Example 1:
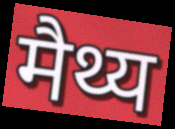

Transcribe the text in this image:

मैथ्य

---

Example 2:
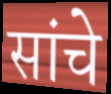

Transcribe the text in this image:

सांचे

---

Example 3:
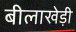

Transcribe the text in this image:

बीलाखेड़ी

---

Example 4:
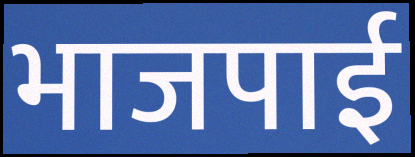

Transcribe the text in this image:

भाजपाई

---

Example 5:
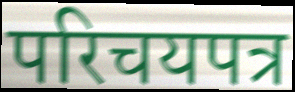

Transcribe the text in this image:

परिचयपत्र